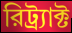
রিট্র্যাক্ট